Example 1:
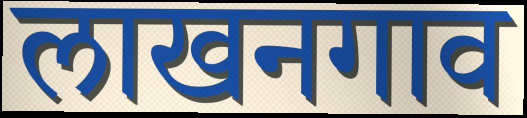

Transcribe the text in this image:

लाखनगाव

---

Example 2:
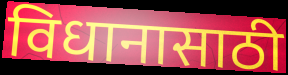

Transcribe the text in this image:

विधानासाठी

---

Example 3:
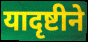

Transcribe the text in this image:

यादृष्टीने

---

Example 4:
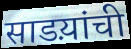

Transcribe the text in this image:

साडय़ांची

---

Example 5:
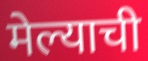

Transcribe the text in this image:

मेल्याची